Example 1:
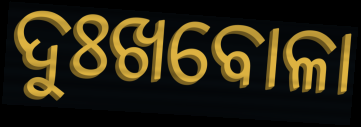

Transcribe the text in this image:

ଦୁଃଖବୋଳା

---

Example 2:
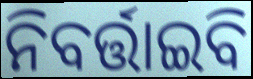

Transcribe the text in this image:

ନିବର୍ତ୍ତାଇବି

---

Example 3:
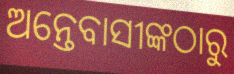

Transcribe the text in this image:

ଅନ୍ତେବାସୀଙ୍କଠାରୁ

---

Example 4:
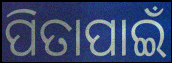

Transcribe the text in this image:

ପିତାପାଇଁ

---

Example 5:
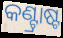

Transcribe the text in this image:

କଣ୍ଟ୍ରାଷ୍ଟ